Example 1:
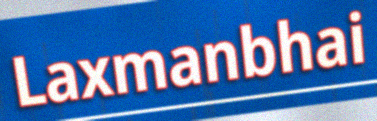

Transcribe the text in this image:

Laxmanbhai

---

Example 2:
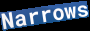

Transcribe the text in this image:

Narrows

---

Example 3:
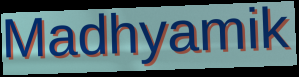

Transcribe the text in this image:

Madhyamik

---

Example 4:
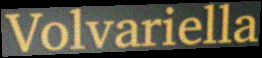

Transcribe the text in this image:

Volvariella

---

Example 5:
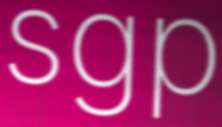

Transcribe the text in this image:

sgp